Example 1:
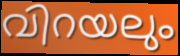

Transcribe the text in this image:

വിറയലും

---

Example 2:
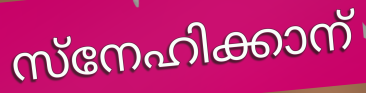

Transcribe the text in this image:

സ്നേഹിക്കാന്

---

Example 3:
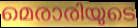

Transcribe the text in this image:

മെരാരിയുടെ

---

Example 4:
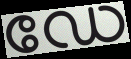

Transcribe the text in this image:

ഡേ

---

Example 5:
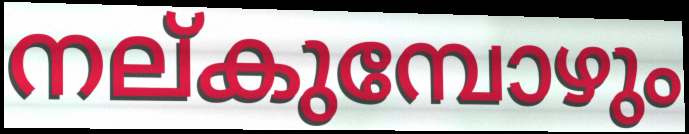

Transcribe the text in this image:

നല്കുമ്പോഴും